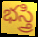
భస్త్రి